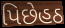
પિછેહઠ